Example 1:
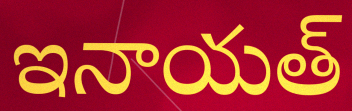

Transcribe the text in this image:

ఇనాయత్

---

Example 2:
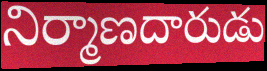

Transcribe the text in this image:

నిర్మాణదారుడు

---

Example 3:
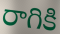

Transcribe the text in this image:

రాగికి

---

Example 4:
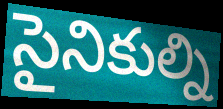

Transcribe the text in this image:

సైనికుల్ని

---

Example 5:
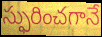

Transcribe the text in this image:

స్ఫురించగానే